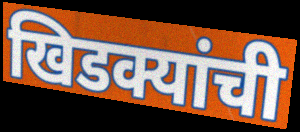
खिडक्यांची